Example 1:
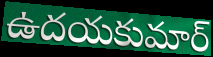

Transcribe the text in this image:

ఉదయకుమార్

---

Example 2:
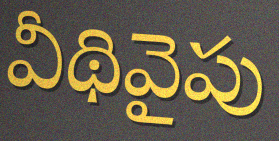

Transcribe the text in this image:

వీథివైపు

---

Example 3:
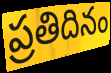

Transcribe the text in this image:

ప్రతిదినం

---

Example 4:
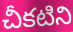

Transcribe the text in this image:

చీకటిని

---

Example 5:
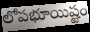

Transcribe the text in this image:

లోపభూయిష్టం